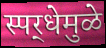
स्पर्धेमुळे